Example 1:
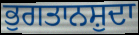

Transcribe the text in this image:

ਭੁਗਤਾਨਸ਼ੁਦਾ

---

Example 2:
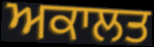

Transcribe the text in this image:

ਅਕਾਲਤ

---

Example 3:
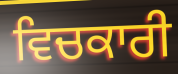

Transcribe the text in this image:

ਵਿਚਕਾਰੀ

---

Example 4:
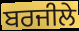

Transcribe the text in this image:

ਬਰਜੀਲੇ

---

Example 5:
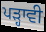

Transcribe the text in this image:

ਪੜ੍ਹਾਵੀ